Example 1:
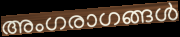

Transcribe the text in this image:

അംഗരാഗങ്ങൾ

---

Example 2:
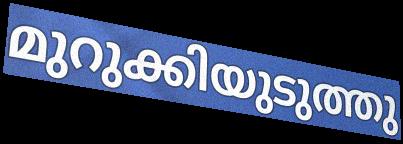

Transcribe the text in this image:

മുറുക്കിയുടുത്തു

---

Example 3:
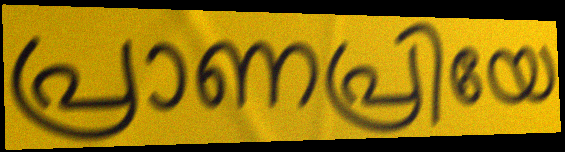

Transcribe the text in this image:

പ്രാണപ്രിയേ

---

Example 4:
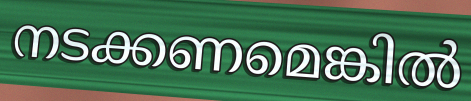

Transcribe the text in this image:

നടക്കണമെങ്കിൽ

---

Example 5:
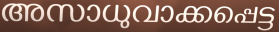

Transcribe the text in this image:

അസാധുവാക്കപ്പെട്ട